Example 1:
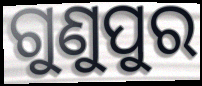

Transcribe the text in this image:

ଗୁଣୁପୁର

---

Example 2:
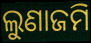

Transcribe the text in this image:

ଲୁଣାଜମି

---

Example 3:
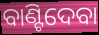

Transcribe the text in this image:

ବାଣ୍ଟିଦେବା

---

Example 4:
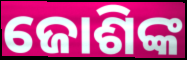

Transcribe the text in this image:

ଜୋଶିଙ୍କ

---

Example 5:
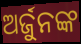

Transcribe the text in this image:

ଅର୍ଜୁନଙ୍କ